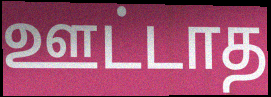
ஊட்டாத